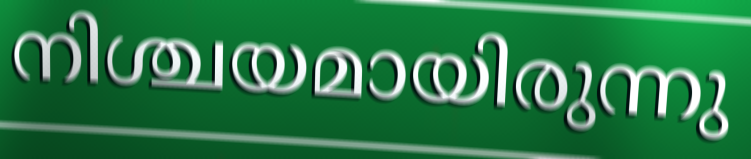
നിശ്ചയമായിരുന്നു